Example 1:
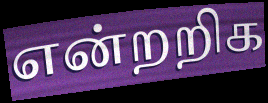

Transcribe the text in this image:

என்றறிக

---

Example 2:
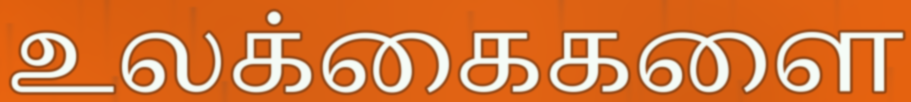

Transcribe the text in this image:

உலக்கைகளை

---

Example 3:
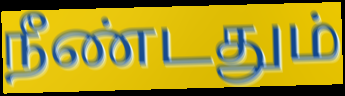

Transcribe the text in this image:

நீண்டதும்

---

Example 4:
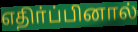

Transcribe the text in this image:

எதிர்ப்பினால்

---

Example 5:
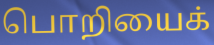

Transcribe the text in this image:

பொறியைக்